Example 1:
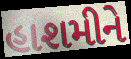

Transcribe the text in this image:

હાશમીને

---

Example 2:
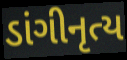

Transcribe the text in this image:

ડાંગીનૃત્ય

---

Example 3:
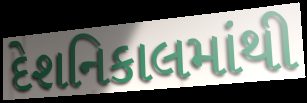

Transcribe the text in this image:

દેશનિકાલમાંથી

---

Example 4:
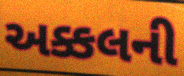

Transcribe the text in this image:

અક્કલની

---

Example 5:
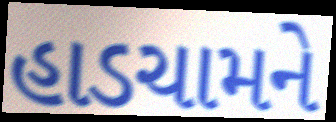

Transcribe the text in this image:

હાડચામને